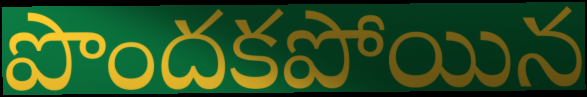
పొందకపోయిన